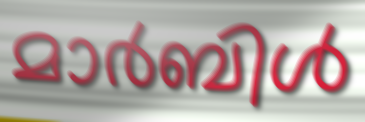
മാർബിൾ